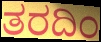
ತರದಿಂ